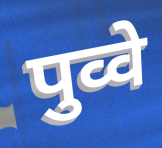
पुव्वे